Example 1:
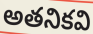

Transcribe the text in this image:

అతనికవి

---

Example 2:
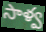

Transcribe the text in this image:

సాళ్వ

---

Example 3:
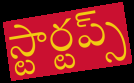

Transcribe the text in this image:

స్టార్టప్స్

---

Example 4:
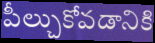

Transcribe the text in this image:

పీల్చుకోవడానికి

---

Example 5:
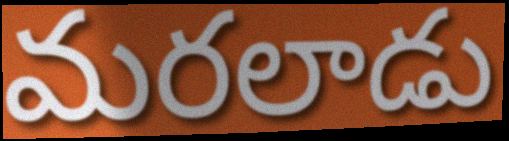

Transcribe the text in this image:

మరలాడు